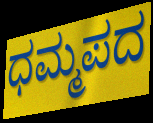
ಧಮ್ಮಪದ